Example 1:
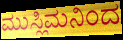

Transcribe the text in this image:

ಮುಸ್ಲಿಮನಿಂದ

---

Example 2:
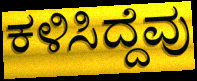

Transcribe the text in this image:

ಕಳಿಸಿದ್ದೆವು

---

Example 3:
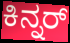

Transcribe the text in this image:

ಕಿನ್ನರ್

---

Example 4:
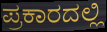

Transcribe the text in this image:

ಪ್ರಕಾರದಲ್ಲಿ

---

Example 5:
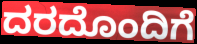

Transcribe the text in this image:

ದರದೊಂದಿಗೆ